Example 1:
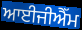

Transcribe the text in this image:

ਆਈਜੀਐੱਮ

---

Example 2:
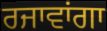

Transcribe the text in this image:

ਰਜਾਵਾਂਗਾ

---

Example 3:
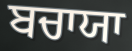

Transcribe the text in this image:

ਬਚਾਯਾ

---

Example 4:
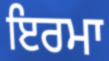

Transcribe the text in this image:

ਇਰਮਾ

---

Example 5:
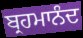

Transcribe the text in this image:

ਬ੍ਰਹਮਾਨੰਦ